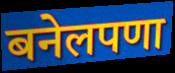
बनेलपणा